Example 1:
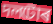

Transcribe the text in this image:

দলটোৰ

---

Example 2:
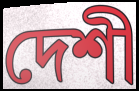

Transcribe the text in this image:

দেশী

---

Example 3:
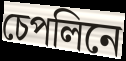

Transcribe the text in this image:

চেপলিনে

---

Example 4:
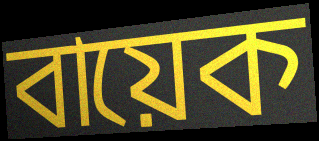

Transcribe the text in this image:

বায়েক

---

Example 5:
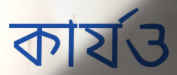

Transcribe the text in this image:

কাৰ্যও